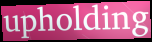
upholding